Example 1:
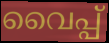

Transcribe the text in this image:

വൈപ്പ്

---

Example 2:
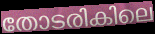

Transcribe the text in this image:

തോടരികിലെ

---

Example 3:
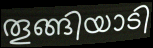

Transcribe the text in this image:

തൂങ്ങിയാടി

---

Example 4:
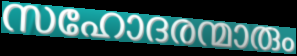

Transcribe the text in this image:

സഹോദരന്മാരും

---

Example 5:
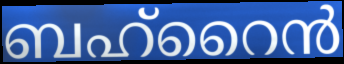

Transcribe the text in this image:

ബഹ്റൈൻ